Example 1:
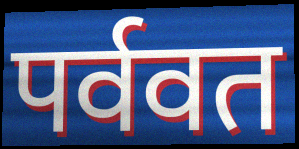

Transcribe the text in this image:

पर्ववत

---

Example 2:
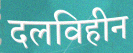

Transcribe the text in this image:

दलविहीन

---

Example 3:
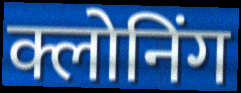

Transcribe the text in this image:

क्लोनिंग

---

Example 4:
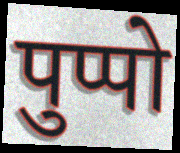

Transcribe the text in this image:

पुप्पो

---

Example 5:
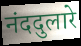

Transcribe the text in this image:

नंददुलारे